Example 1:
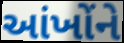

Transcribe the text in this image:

આંખોંને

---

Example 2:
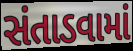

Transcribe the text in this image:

સંતાડવામાં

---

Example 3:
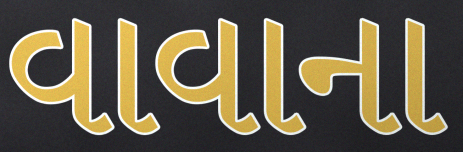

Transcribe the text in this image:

વાવાના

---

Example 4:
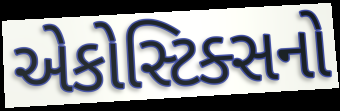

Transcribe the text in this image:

એકોસ્ટિક્સનો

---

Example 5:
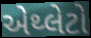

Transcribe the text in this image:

એથ્લેટો